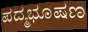
ಪದ್ಮಭೂಷಣ